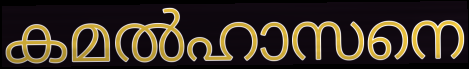
കമൽഹാസനെ